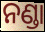
ନଣ୍ଡା